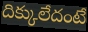
దిక్కులేదంటే